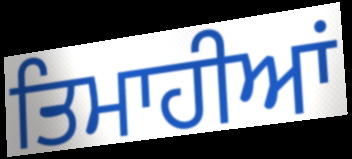
ਤਿਮਾਹੀਆਂ